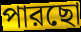
পারছো